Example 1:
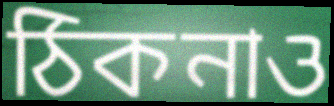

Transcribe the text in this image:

ঠিকনাও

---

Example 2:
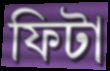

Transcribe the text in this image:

ফিটা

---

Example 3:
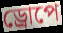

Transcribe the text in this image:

ড্ৰোপে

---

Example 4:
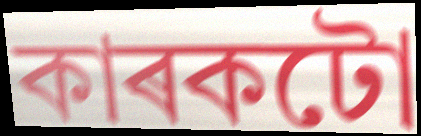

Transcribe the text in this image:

কাৰকটো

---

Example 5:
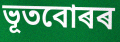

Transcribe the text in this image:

ভূতবোৰৰ